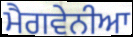
ਮੈਗਵੇਨੀਆ